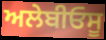
ਅਲੇਬੀਓਸੂ